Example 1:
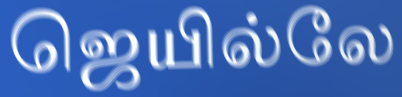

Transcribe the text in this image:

ஜெயில்லே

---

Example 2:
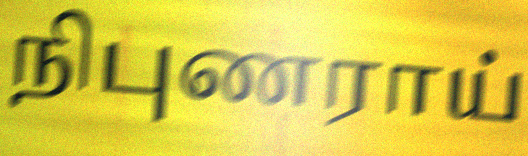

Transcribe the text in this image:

நிபுணராய்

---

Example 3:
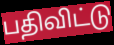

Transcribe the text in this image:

பதிவிட்டு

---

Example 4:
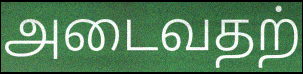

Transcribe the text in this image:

அடைவதற்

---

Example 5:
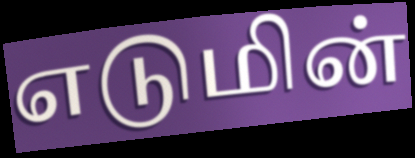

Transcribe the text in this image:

எடுமின்